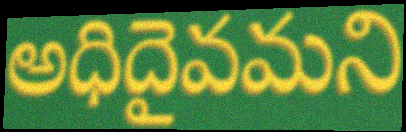
అధిదైవమని